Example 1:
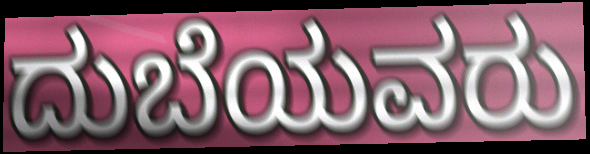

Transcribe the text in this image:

ದುಬೆಯವರು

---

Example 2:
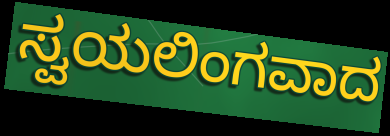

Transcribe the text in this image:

ಸ್ವಯಲಿಂಗವಾದ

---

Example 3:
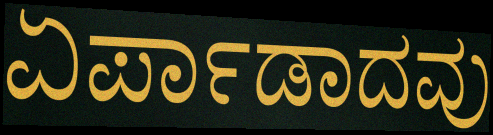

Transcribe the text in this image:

ಏರ್ಪಾಡಾದವು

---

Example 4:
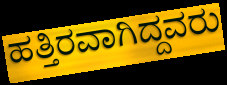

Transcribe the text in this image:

ಹತ್ತಿರವಾಗಿದ್ದವರು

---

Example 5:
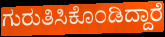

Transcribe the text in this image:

ಗುರುತಿಸಿಕೊಂಡಿದ್ದಾರೆ